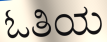
ಓತಿಯ